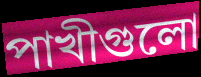
পাখীগুলো